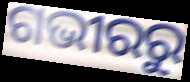
ଗଭୀରରୁ